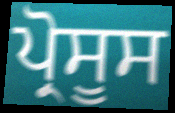
ਪ੍ਰੋਸੂਸ